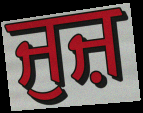
ਜੁਜ਼